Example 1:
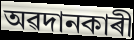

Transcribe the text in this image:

অৱদানকাৰী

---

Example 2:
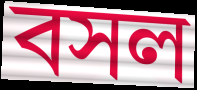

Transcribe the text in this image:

বসল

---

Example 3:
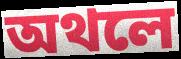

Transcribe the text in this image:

অথলে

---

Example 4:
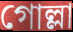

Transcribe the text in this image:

গোল্লা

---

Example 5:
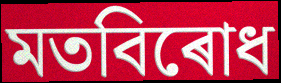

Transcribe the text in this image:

মতবিৰোধ